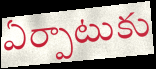
ఏర్పాటుకు